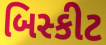
બિસ્કીટ